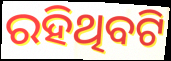
ରହିଥିବଟି